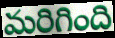
మరిగింది